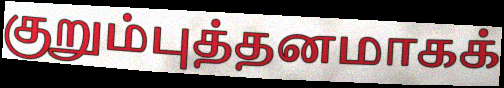
குறும்புத்தனமாகக்